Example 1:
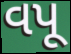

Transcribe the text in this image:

વપૂ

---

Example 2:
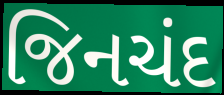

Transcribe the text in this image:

જિનચંદ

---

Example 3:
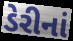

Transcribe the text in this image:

ડેરીનાં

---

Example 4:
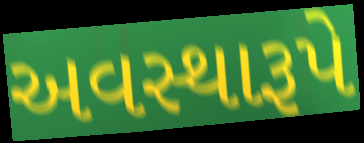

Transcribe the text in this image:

અવસ્થારૂપે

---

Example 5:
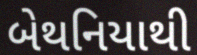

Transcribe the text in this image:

બેથનિયાથી